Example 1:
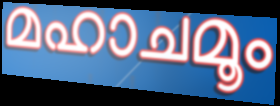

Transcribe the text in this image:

മഹാചമൂം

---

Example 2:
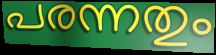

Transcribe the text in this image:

പരന്നതും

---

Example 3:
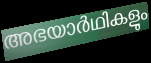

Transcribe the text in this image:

അഭയാർഥികളും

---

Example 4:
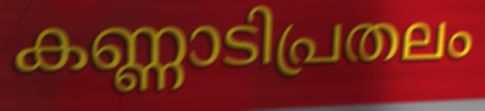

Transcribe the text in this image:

കണ്ണാടിപ്രതലം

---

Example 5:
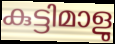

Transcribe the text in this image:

കുട്ടിമാളു